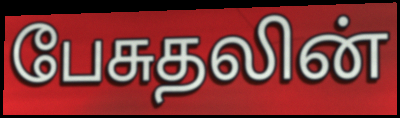
பேசுதலின்